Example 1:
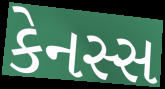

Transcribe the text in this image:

કેનસ્સ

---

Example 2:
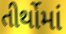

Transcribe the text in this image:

તીર્થોમાં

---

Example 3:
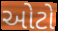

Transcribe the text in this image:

ઓટો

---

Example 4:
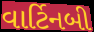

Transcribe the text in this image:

વાર્ટિનબી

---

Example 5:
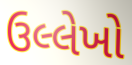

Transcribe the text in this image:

ઉલ્લેખો